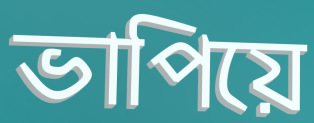
ভাপিয়ে